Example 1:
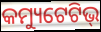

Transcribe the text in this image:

କମ୍ୟୁଟେଟିଭ୍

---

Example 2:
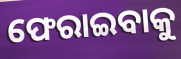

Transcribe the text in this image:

ଫେରାଇବାକୁ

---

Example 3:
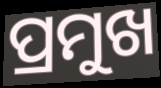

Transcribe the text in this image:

ପ୍ରମୁଖ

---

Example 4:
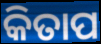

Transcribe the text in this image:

କିତାପ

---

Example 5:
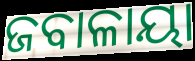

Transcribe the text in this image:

ଜବାଳାୟା